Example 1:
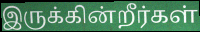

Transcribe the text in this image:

இருக்கின்றீர்கள்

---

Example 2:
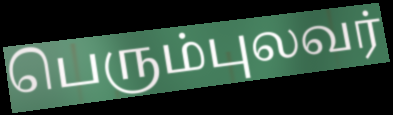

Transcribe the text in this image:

பெரும்புலவர்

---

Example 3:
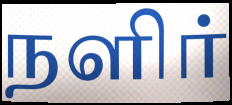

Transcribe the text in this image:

நளிர்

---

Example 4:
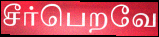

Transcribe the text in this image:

சீர்பெறவே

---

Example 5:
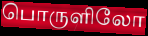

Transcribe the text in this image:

பொருளிலோ